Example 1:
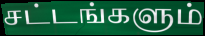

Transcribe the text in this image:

சட்டங்களும்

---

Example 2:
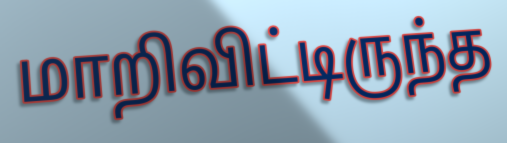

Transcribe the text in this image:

மாறிவிட்டிருந்த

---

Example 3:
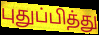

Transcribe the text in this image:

புதுப்பித்து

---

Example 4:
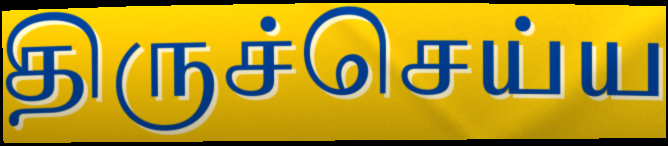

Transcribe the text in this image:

திருச்செய்ய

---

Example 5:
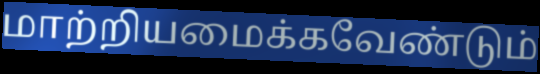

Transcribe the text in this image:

மாற்றியமைக்கவேண்டும்